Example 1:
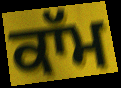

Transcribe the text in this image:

ਕਾੱਮ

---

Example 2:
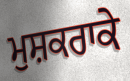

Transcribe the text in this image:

ਮੁਸ਼ਕਰਾਕੇ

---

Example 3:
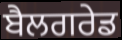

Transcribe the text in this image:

ਬੈਲਗਰੇਡ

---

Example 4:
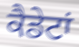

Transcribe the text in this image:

ਕੈਡੇਟਾਂ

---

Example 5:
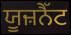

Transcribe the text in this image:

ਯੂਜ਼ਨੈੱਟ